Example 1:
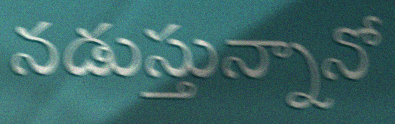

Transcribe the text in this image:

నడుస్తున్నానో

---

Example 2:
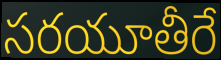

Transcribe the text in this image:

సరయూతీరే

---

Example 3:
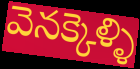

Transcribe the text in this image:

వెనక్కెళ్ళి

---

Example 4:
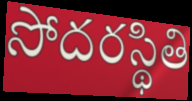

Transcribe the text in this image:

సోదరస్థితి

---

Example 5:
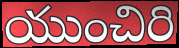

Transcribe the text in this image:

యుంచిరి